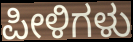
ಪೀಳಿಗಳು